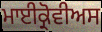
ਮਾਈਕ੍ਰੋਵੀਅਸ